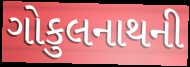
ગોકુલનાથની